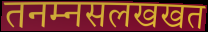
तनम्नसलखखत